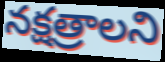
నక్షత్రాలని